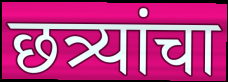
छत्र्यांचा